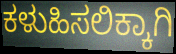
ಕಳುಹಿಸಲಿಕ್ಕಾಗಿ